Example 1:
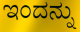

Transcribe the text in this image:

ಇಂದನ್ನು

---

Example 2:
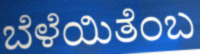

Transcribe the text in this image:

ಬೆಳೆಯಿತೆಂಬ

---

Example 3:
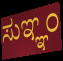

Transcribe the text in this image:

ಸುಞ್ಞಂ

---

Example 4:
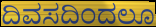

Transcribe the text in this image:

ದಿವಸದಿಂದಲೂ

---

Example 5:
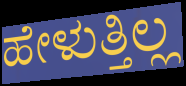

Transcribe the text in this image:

ಹೇಳುತ್ತಿಲ್ಲ